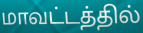
மாவட்டத்தில்